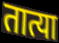
तात्या